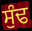
ਸੁੰਢ